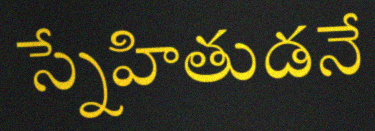
స్నేహితుడనే